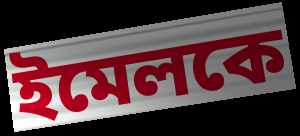
ইমেলকে